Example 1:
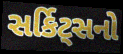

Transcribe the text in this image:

સર્કિટ્સનો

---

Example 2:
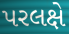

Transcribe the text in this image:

પરલક્ષે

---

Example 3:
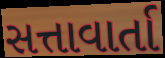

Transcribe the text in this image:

સત્તાવાર્તા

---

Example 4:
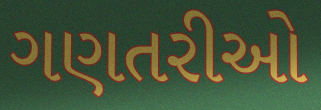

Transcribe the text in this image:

ગણતરીઓ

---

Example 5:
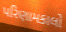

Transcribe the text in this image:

પરિણામકાલો